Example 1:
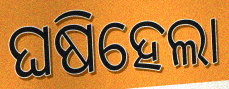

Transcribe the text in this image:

ଘଷିହେଲା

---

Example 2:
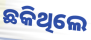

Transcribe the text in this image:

ଛକିଥିଲେ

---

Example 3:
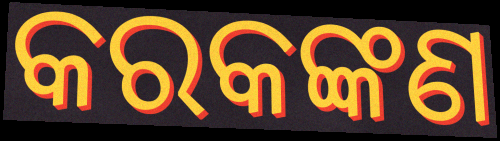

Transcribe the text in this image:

କରକଙ୍କଣ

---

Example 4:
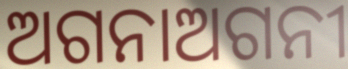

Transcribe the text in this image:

ଅଗନାଅଗନୀ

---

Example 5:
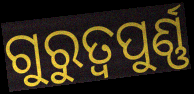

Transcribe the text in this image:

ଗୁରୁତ୍ୱପୁର୍ଣ୍ଣ